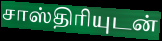
சாஸ்திரியுடன்